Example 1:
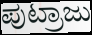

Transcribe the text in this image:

ಪುಟ್ರಾಜು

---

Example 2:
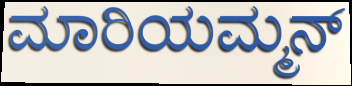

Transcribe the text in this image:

ಮಾರಿಯಮ್ಮನ್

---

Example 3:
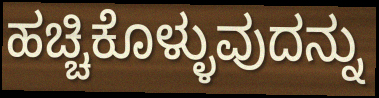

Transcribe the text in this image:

ಹಚ್ಚಿಕೊಳ್ಳುವುದನ್ನು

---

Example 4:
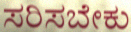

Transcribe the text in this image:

ಸರಿಸಬೇಕು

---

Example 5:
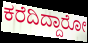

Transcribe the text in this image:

ಕರೆದಿದ್ದಾರೋ